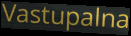
Vastupalna